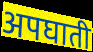
अपघाती